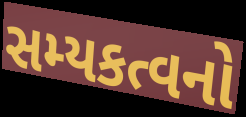
સમ્યકત્વનો